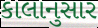
કાલાનુસાર